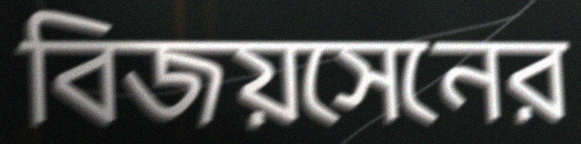
বিজয়সেনের